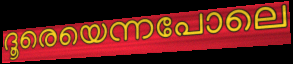
ദൂരെയെന്നപോലെ